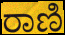
ರಾಣಿ